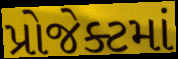
પ્રોજેક્ટમાં